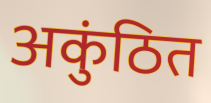
अकुंठित